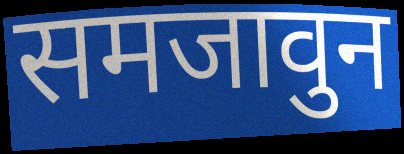
समजावुन